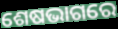
ଶେଷଭାଗରେ